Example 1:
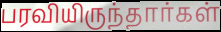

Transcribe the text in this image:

பரவியிருந்தார்கள்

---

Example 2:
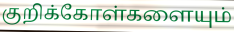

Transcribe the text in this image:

குறிக்கோள்களையும்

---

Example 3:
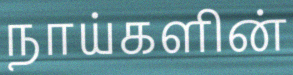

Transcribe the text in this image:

நாய்களின்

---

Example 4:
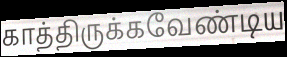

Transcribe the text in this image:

காத்திருக்கவேண்டிய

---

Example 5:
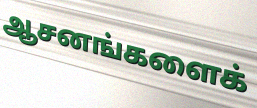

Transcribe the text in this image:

ஆசனங்களைக்